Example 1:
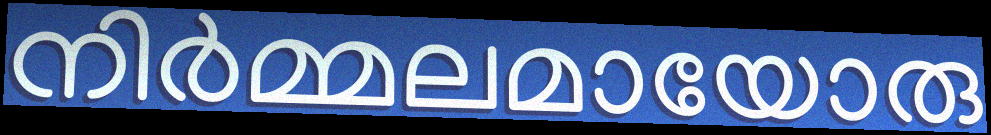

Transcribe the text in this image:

നിർമ്മലമായോരു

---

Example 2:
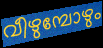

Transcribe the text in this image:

വീഴുമ്പോഴും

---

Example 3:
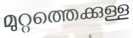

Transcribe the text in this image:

മുറ്റത്തെക്കുള്ള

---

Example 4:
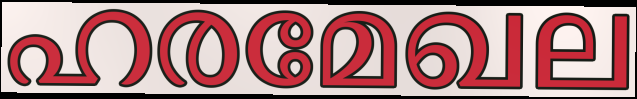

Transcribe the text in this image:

ഹരമേഖല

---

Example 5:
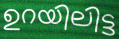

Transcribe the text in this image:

ഉറയിലിട്ട